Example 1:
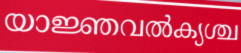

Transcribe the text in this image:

യാജ്ഞവൽക്യശ്ച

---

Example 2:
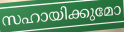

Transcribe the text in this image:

സഹായിക്കുമോ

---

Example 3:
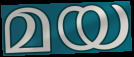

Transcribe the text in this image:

മയ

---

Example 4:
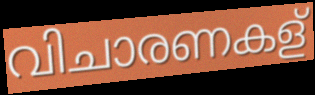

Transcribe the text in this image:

വിചാരണകള്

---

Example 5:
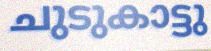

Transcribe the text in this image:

ചുടുകാട്ടു